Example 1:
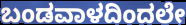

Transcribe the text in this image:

ಬಂಡವಾಳದಿಂದಲೇ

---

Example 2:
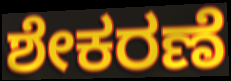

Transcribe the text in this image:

ಶೇಕರಣೆ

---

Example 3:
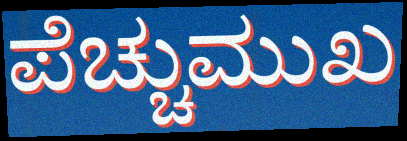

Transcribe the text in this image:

ಪೆಚ್ಚುಮುಖ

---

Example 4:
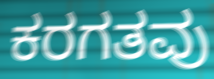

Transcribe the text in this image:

ಕರಗತವು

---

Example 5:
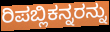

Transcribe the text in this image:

ರಿಪಬ್ಲಿಕನ್ನರನ್ನು